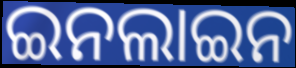
ଇନଲାଇନ